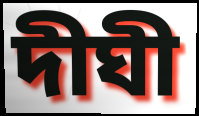
দীঘী